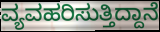
ವ್ಯವಹರಿಸುತ್ತಿದ್ದಾನೆ